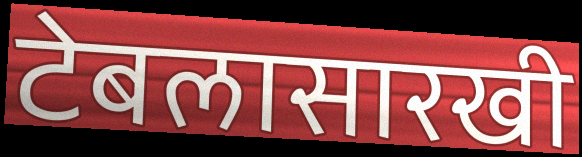
टेबलासारखी